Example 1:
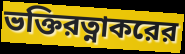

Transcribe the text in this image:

ভক্তিরত্নাকরের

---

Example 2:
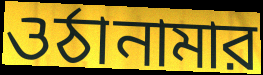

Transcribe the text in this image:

ওঠানামার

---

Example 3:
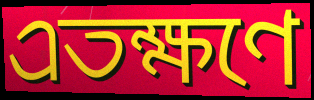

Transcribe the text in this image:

এতক্ষণে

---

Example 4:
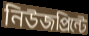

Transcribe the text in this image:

নিউজপ্রিন্টে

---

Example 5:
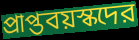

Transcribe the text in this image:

প্রাপ্তবয়স্কদের